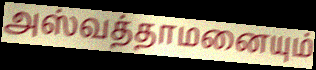
அஸ்வத்தாமனையும்